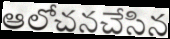
ఆలోచనచేసిన